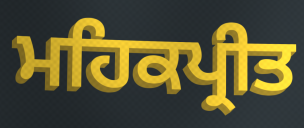
ਮਹਿਕਪ੍ਰੀਤ